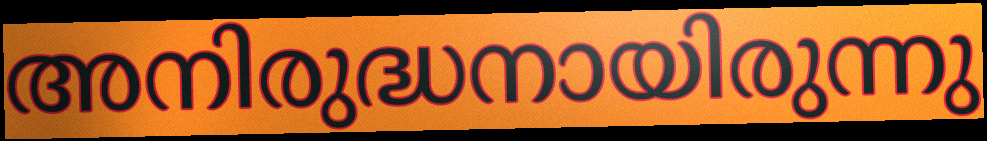
അനിരുദ്ധനായിരുന്നു